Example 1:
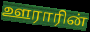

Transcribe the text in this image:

ஊராரின்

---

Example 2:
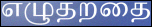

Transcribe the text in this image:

எழுதறதை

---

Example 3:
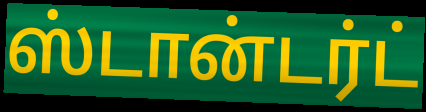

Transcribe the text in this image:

ஸ்டான்டர்ட்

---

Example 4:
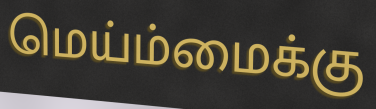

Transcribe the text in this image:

மெய்ம்மைக்கு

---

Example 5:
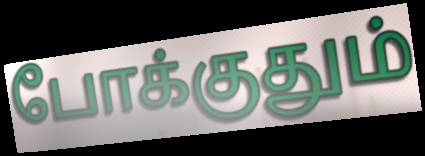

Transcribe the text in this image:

போக்குதும்